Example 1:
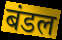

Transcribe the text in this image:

बंडल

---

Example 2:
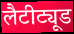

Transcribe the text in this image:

लैटीट्यूड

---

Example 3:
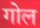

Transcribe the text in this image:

गोल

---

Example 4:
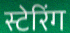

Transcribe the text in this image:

स्टेरिंग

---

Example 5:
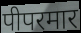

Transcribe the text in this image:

पीपरमार